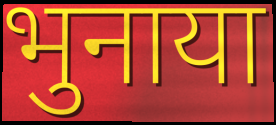
भुनाया